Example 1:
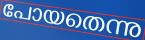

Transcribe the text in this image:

പോയതെന്നു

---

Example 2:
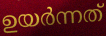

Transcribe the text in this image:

ഉയർന്നത്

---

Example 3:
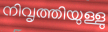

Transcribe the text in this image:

നിവൃത്തിയുള്ളു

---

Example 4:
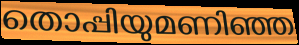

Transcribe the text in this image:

തൊപ്പിയുമണിഞ്ഞ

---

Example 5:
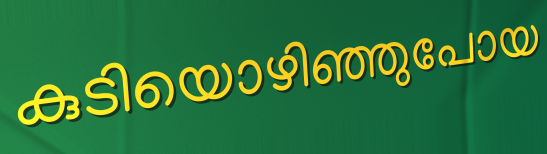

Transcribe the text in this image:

കുടിയൊഴിഞ്ഞുപോയ